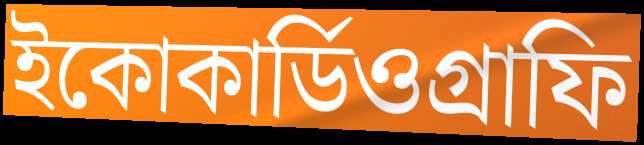
ইকোকার্ডিওগ্রাফি